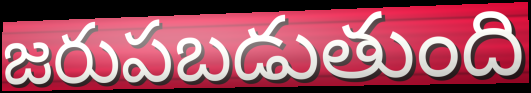
జరుపబడుతుంది